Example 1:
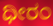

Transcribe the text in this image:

ಧೀರಂ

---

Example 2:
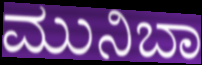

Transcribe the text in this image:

ಮುನಿಬಾ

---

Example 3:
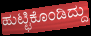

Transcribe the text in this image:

ಹುಟ್ಟಿಕೊಂಡಿದ್ದು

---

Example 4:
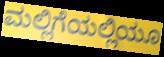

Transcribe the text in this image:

ಮಲ್ಲಿಗೆಯಲ್ಲಿಯೂ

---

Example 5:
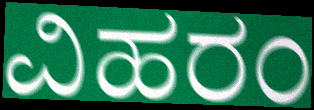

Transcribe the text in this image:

ವಿಹರಂ